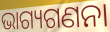
ଭାଗ୍ୟଗଣନା